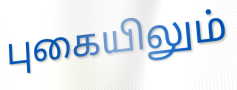
புகையிலும்